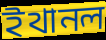
ইথানল